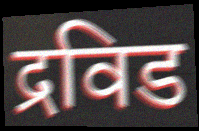
द्रविड